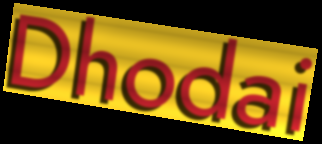
Dhodai